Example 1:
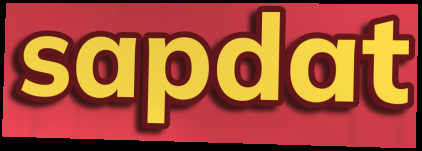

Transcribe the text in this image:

sapdat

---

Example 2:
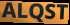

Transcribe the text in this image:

ALQST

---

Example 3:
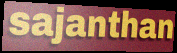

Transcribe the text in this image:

sajanthan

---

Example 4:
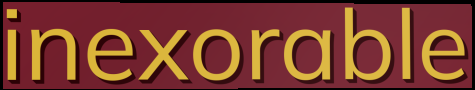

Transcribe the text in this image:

inexorable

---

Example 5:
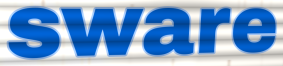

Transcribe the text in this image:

sware